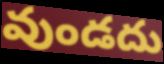
వుండదు